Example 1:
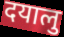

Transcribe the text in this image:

दयालु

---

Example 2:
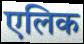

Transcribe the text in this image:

एलिक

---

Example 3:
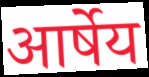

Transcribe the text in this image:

आर्षेय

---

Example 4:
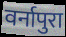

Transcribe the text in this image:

वर्नापुरा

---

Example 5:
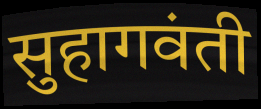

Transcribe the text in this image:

सुहागवंती